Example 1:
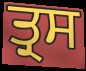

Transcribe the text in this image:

ਤ੍ਰਸ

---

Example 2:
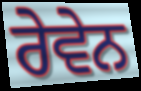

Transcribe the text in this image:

ਰੇਵੇਨ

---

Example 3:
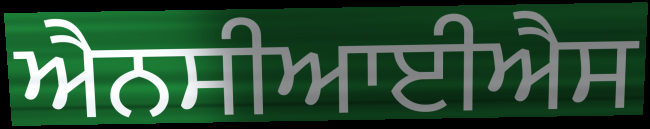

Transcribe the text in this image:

ਐਨਸੀਆਈਐਸ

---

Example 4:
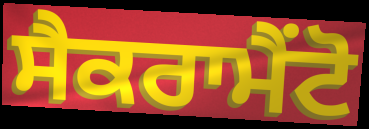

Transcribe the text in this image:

ਸੈਕਰਾਮੈਂਟੋ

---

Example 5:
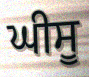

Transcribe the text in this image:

ਘੀਸੂ